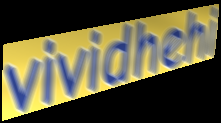
vividhehi